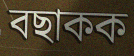
বছাকক